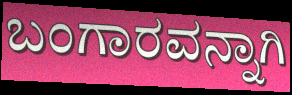
ಬಂಗಾರವನ್ನಾಗಿ